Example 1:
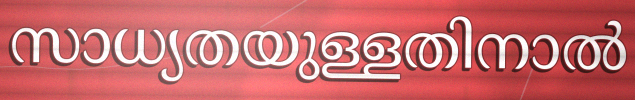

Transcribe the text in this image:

സാധ്യതയുള്ളതിനാൽ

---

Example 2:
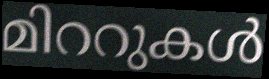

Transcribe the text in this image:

മിററുകൾ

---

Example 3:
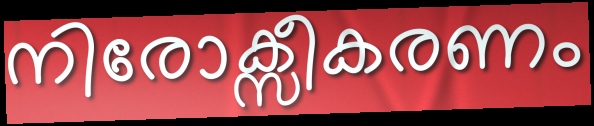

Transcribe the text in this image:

നിരോക്സീകരണം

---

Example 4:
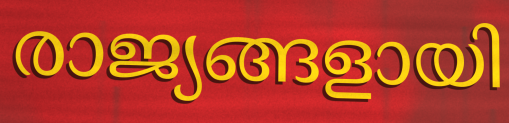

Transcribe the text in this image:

രാജ്യങ്ങളായി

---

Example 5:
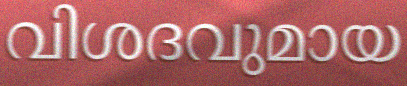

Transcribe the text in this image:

വിശദവുമായ